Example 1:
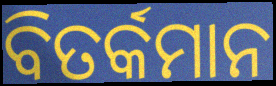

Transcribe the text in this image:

ବିତର୍କମାନ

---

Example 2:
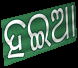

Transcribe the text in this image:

ହଇଆ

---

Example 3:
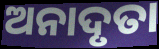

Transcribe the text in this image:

ଅନାଦୃତା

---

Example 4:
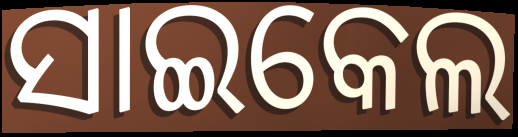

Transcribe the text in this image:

ସାଇକେଲ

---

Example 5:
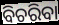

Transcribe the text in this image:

ବିଚରିବା